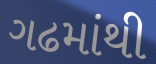
ગઢમાંથી